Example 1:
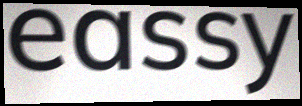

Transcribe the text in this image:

eassy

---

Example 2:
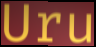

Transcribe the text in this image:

Uru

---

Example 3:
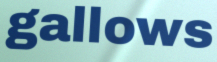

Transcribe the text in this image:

gallows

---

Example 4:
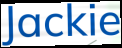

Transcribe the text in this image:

Jackie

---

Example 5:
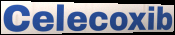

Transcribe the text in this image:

Celecoxib